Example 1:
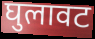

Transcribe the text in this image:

घुलावट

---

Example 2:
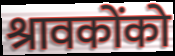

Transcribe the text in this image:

श्रावकोंको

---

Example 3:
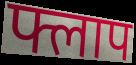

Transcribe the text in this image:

फ्लाप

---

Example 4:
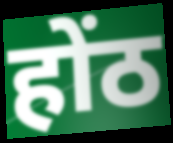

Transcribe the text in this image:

होंठ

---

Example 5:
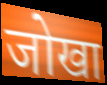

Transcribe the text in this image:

जोखा